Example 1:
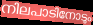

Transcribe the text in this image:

നിലപാടിനോടും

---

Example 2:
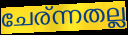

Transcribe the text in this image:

ചേര്ന്നതല്ല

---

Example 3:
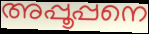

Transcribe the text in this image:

അപ്പൂപ്പനെ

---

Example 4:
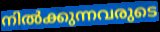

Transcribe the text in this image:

നിൽക്കുന്നവരുടെ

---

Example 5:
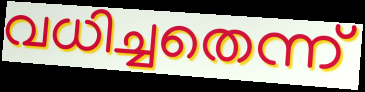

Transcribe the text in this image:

വധിച്ചതെന്ന്